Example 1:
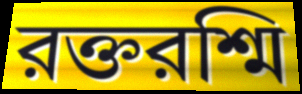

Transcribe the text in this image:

রক্তরশ্মি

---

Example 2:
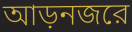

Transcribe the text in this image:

আড়নজরে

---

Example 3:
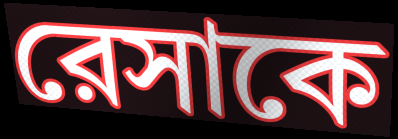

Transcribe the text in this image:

রেসাকে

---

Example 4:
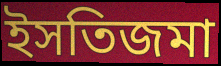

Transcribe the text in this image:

ইসতিজমা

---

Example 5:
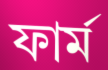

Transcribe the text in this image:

ফার্ম